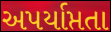
અપર્યાપ્તતા